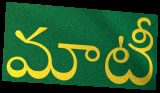
మాటీ